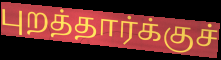
புறத்தார்க்குச்